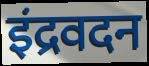
इंद्रवदन